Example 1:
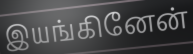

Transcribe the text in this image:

இயங்கினேன்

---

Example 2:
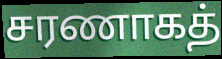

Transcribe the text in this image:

சரணாகத்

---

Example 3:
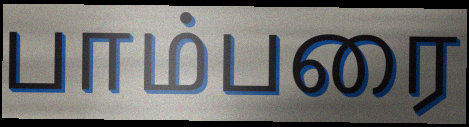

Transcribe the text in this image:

பாம்பரை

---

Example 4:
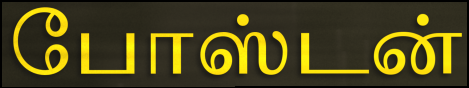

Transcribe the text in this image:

போஸ்டன்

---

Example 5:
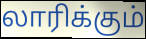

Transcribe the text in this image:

லாரிக்கும்